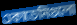
একাডেমিগুলো